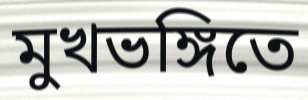
মুখভঙ্গিতে